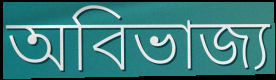
অবিভাজ্য